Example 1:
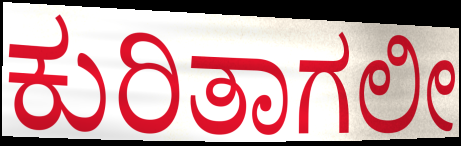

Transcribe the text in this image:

ಕುರಿತಾಗಲೀ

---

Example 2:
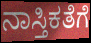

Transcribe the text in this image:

ನಾಸ್ತಿಕತೆಗೆ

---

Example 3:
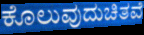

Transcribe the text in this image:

ಕೊಲುವುದುಚಿತವೆ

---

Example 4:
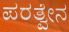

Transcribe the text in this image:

ಪರತ್ವೇನ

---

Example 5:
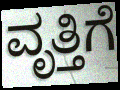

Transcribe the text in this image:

ವೃತ್ತಿಗೆ